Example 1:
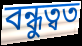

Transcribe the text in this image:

বন্ধুত্বত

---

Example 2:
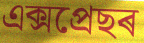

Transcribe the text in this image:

এক্সপ্ৰেছৰ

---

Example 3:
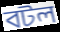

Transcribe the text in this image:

বটল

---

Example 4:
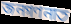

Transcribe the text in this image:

জনগণনাত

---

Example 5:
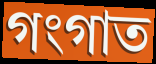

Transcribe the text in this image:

গংগাত